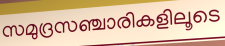
സമുദ്രസഞ്ചാരികളിലൂടെ